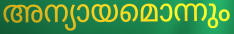
അന്യായമൊന്നും